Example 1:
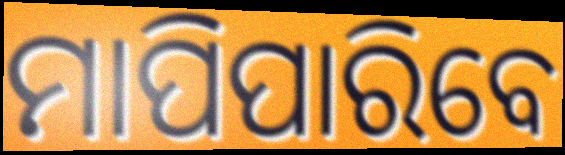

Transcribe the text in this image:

ମାପିପାରିବେ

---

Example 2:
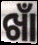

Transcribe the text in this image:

ଖାଁ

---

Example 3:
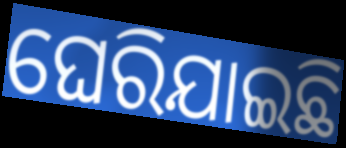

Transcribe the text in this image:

ଘେରିଯାଇଛି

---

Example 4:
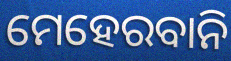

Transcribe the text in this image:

ମେହେରବାନି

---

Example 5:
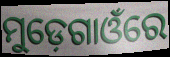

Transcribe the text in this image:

ମୁଡ଼େଗାଓଁରେ